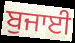
ਬੁਜਾਈ